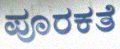
ಪೂರಕತೆ